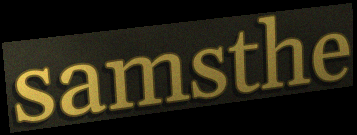
samsthe